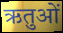
ऋतुओं